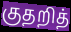
குதறித்